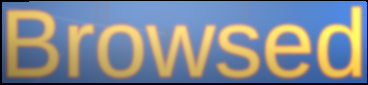
Browsed